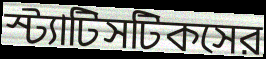
স্ট্যাটিসটিকসের